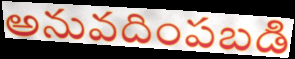
అనువదింపబడి